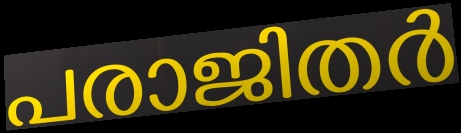
പരാജിതർ